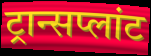
ट्रान्सप्लांट